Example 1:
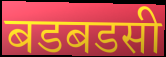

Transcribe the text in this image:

बडबडसी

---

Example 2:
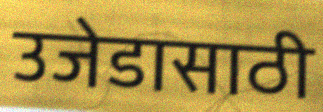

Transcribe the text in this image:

उजेडासाठी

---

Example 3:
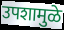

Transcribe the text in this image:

उपशामुळे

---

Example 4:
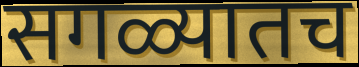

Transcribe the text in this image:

सगळ्यातच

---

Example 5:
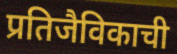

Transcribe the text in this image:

प्रतिजैविकाची